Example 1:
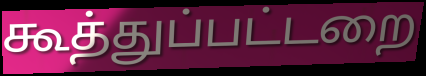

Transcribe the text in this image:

கூத்துப்பட்டறை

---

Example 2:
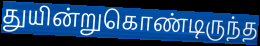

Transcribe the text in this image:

துயின்றுகொண்டிருந்த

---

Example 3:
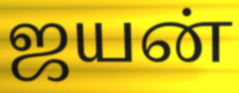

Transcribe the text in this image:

ஜயன்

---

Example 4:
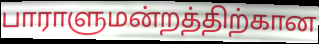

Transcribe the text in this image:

பாராளுமன்றத்திற்கான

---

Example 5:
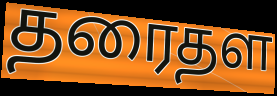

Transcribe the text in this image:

தரைதள